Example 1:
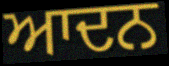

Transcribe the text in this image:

ਆਦਨ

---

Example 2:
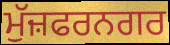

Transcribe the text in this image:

ਮੁੱਜ਼ਫਰਨਗਰ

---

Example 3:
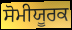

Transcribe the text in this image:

ਸੋਮੀਯੂਰਕ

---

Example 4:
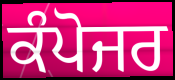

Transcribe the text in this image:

ਕੰਪੋਜਰ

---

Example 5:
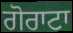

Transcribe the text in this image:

ਗੋਰਾਟਾ